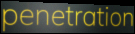
penetration